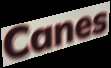
Canes